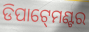
ଡିପାଟ୍‍ମେଣ୍ଟର